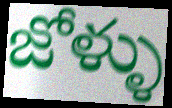
జోళ్ళు